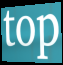
top